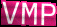
VMP